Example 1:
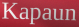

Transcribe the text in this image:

Kapaun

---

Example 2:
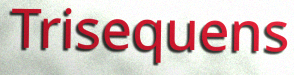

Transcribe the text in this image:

Trisequens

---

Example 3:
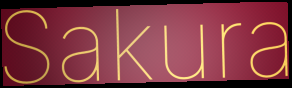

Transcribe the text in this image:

Sakura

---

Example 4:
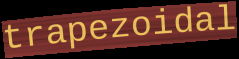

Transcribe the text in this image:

trapezoidal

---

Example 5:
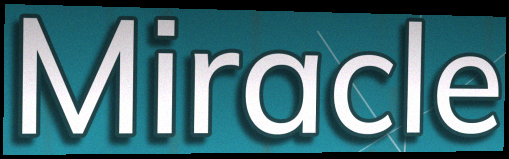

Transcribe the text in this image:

Miracle